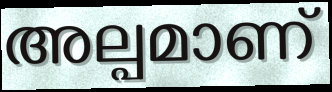
അല്പമാണ്